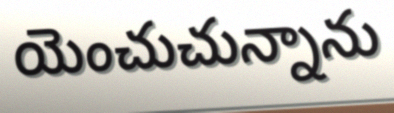
యెంచుచున్నాను